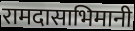
रामदासाभिमानी